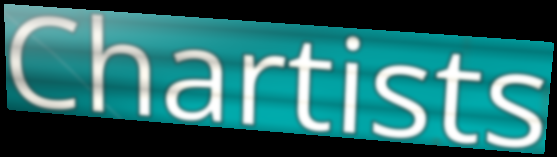
Chartists